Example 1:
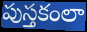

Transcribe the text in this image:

పుస్తకంలా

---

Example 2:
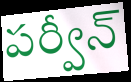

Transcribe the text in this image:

పర్వీన్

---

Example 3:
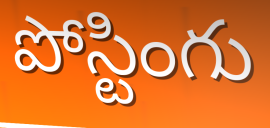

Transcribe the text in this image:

పోస్టింగు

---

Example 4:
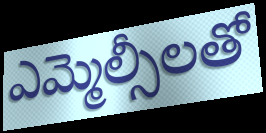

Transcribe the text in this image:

ఎమ్మెల్సీలతో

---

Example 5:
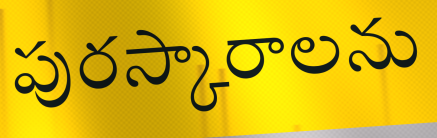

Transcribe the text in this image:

పురస్కారాలను